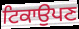
ਟਿਕਾਉਪਣ